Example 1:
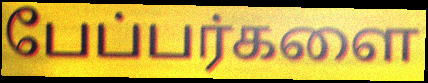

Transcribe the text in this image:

பேப்பர்களை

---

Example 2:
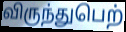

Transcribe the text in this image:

விருந்துபெற்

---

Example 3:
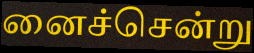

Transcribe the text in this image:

னைச்சென்று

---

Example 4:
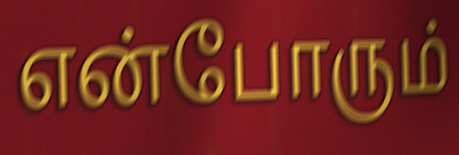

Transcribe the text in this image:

என்போரும்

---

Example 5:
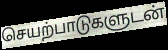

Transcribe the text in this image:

செயற்பாடுகளுடன்